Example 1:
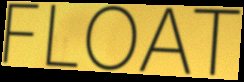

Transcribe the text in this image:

FLOAT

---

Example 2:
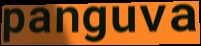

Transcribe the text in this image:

panguva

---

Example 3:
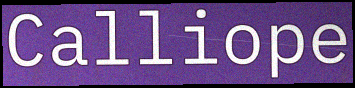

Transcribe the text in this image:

Calliope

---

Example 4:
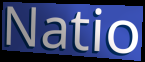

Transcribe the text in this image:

Natio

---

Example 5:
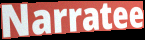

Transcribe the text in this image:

Narratee